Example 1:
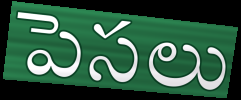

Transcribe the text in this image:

పెసలు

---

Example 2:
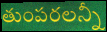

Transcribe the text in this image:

తుంపరలన్నీ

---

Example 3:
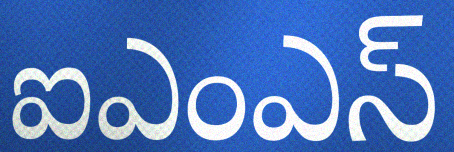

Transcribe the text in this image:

ఐఎంఎస్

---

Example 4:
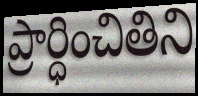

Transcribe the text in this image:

ప్రార్ధించితిని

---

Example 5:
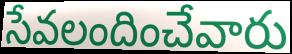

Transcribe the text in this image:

సేవలందించేవారు